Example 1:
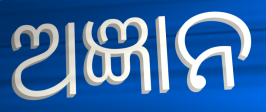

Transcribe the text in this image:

ଅଜ୍ଞାନ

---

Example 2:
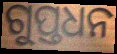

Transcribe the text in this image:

ଗୁପ୍ତଧନ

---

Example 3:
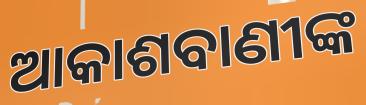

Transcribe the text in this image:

ଆକାଶବାଣୀଙ୍କ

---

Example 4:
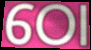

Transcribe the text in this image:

ଠୋ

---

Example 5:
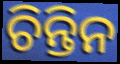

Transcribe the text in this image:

ଚିନ୍ତିନ